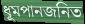
ধূমপানজনিত